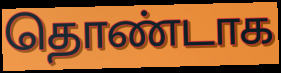
தொண்டாக